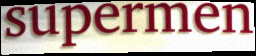
supermen